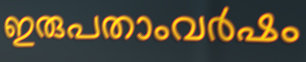
ഇരുപതാംവർഷം